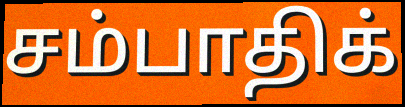
சம்பாதிக்